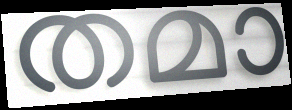
തമാ